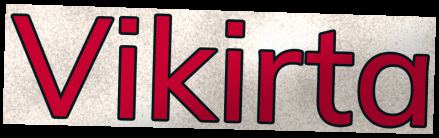
Vikirta